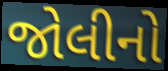
જોલીનો